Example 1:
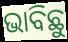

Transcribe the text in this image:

ଭାବିଛୁ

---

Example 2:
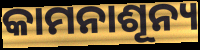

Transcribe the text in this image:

କାମନାଶୂନ୍ୟ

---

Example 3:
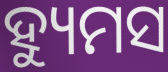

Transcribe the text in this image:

ହ୍ୟୁମସ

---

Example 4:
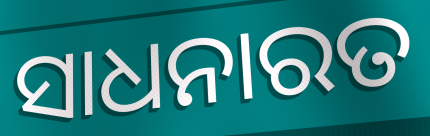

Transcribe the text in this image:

ସାଧନାରତ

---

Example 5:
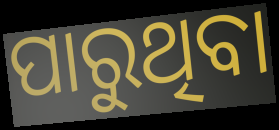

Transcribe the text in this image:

ପାରୁଥିବା